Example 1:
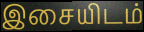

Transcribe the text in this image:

இசையிடம்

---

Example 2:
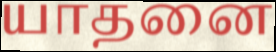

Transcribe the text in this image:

யாதனை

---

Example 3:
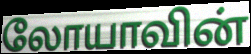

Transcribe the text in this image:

லோயாவின்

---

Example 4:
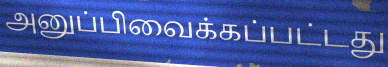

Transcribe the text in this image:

அனுப்பிவைக்கப்பட்டது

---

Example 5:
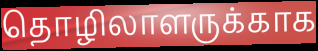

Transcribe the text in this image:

தொழிலாளருக்காக